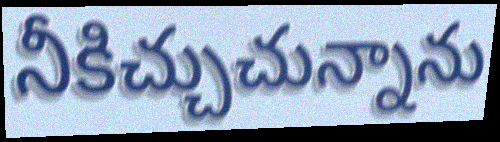
నీకిచ్చుచున్నాను